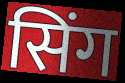
सिंग